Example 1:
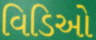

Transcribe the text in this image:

વિડિઓ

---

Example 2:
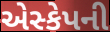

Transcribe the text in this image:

એસ્કેપની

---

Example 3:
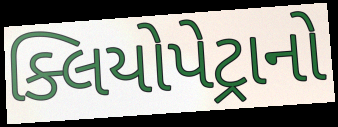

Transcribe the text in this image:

ક્લિયોપેટ્રાનો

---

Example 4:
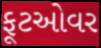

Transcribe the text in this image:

ફૂટઓવર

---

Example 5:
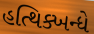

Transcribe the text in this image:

હત્થિક્ખન્ધે